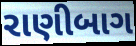
રાણીબાગ